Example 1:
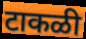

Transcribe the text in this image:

टाकळी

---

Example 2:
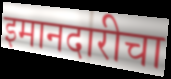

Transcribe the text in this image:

इमानदारीचा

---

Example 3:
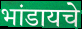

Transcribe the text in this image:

भांडायचे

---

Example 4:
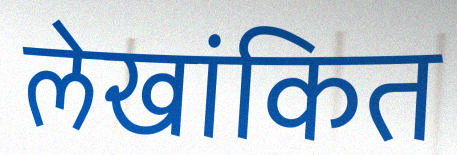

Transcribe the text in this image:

लेखांकित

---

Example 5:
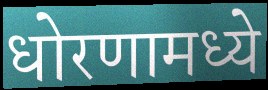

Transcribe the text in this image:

धोरणामध्ये